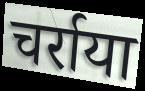
चर्राया